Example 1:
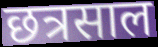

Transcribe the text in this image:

छत्रसाल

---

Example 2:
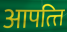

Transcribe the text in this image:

आपत्त्ति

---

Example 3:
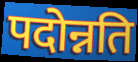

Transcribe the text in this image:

पदोन्नति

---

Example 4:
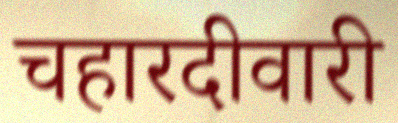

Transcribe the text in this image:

चहारदीवारी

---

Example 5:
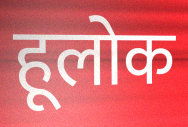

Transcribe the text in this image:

हूलोक